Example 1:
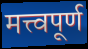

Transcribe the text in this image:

मत्त्वपूर्ण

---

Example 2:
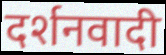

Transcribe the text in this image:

दर्शनवादी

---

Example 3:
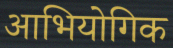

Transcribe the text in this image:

आभियोगिक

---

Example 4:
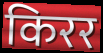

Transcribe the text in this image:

किरर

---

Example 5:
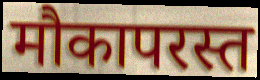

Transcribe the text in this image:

मौकापरस्त